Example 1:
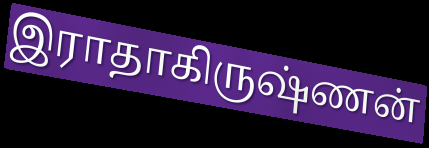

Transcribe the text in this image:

இராதாகிருஷ்ணன்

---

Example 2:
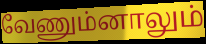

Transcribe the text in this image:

வேணும்னாலும்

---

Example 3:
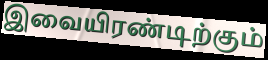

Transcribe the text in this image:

இவையிரண்டிற்கும்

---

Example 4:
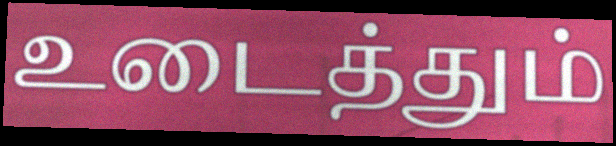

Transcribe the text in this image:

உடைத்தும்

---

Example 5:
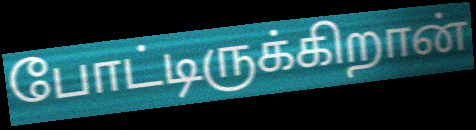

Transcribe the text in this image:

போட்டிருக்கிறான்